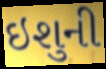
ઇશુની